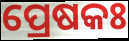
ପ୍ରେଷକଃ